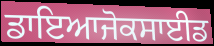
ਡਾਇਆਜੋਕਸਾਈਡ